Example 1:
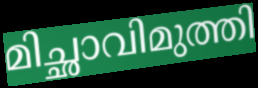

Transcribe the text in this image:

മിച്ഛാവിമുത്തി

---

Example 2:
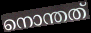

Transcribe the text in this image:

നൊന്തത്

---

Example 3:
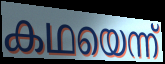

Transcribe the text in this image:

കഥയെന്ന്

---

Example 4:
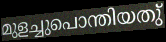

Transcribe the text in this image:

മുളച്ചുപൊന്തിയതു്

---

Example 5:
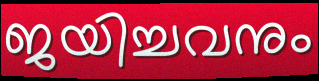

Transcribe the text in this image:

ജയിച്ചവനും